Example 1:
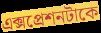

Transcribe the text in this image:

এক্সপ্রেশনটাকে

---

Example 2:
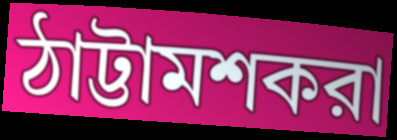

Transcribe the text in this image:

ঠাট্টামশকরা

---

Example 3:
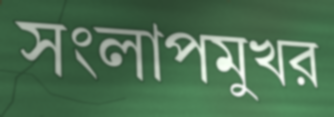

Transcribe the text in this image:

সংলাপমুখর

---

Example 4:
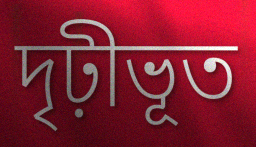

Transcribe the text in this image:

দৃঢ়ীভূত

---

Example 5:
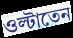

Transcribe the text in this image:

ওল্টাতেন